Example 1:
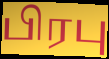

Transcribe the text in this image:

பிரபு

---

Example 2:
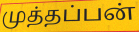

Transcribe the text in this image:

முத்தப்பன்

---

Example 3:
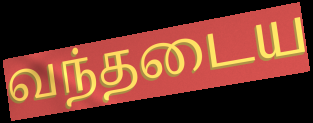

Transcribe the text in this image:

வந்தடைய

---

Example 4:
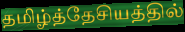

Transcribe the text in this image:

தமிழ்த்தேசியத்தில்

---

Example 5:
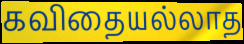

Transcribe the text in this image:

கவிதையல்லாத